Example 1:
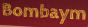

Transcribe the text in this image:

Bombaym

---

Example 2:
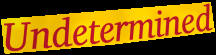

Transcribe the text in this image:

Undetermined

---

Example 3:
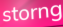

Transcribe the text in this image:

storng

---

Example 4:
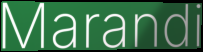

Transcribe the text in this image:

Marandi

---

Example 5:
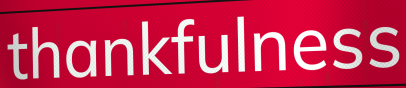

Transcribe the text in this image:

thankfulness